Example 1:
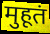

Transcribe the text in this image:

मुहूतं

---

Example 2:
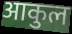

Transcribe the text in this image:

आकुल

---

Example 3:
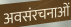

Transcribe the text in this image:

अवसंरचनाओं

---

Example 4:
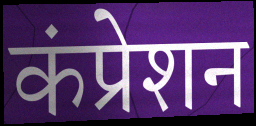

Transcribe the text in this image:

कंप्रेशन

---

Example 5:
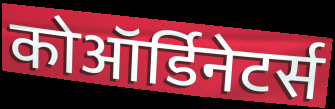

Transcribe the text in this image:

कोऑर्डिनेटर्स